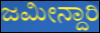
ಜಮೀನ್ದಾರಿ